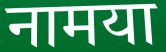
नामया